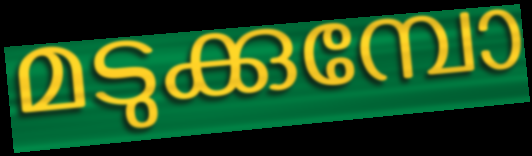
മടുക്കുമ്പോ